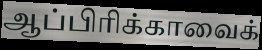
ஆப்பிரிக்காவைக்